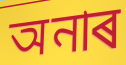
অনাৰ